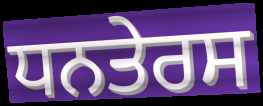
ਧਨਤੇਰਸ